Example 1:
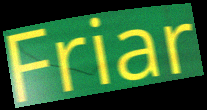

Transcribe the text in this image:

Friar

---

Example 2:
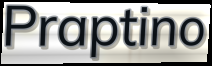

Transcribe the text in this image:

Praptino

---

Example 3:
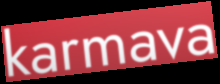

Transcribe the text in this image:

karmava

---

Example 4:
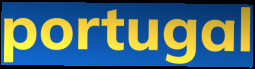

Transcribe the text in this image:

portugal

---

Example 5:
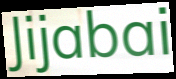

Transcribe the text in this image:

Jijabai